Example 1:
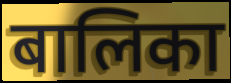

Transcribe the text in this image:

बालिका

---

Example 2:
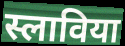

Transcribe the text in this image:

स्लाविया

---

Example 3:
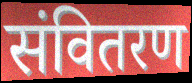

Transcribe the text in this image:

संवितरण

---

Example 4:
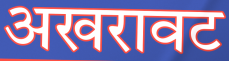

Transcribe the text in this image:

अखरावट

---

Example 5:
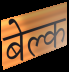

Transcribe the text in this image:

बेल्क